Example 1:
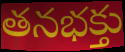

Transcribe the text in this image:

తనభక్తు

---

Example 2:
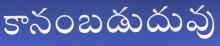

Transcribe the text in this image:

కానంబడుదువు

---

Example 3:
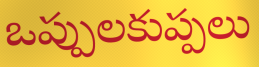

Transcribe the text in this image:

ఒప్పులకుప్పలు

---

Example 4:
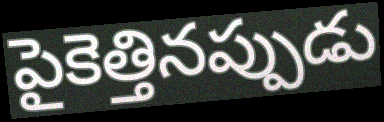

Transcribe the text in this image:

పైకెత్తినప్పుడు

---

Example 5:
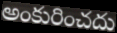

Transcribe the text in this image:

అంకురించదు